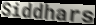
Siddhars